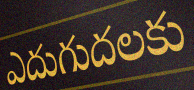
ఎదుగుదలకు